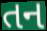
તન